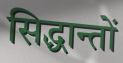
सिद्धान्तों